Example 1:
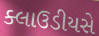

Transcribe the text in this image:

ક્લાઉડીયસે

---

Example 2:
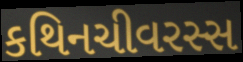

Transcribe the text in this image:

કથિનચીવરસ્સ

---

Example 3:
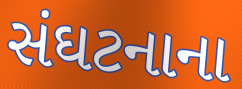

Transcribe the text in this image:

સંઘટનાના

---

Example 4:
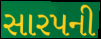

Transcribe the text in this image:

સારપની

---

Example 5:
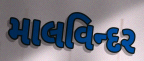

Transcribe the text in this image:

માલવિન્દર